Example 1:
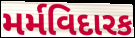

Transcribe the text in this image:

મર્મવિદારક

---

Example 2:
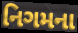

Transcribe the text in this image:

નિગમના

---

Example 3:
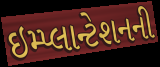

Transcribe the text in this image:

ઇમ્પ્લાન્ટેશનની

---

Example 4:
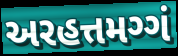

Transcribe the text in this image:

અરહત્તમગ્ગં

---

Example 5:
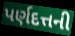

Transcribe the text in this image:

પર્ણદત્તની